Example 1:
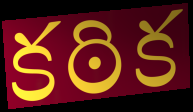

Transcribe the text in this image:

కఠిక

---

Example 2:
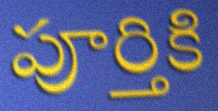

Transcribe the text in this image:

పూర్తికి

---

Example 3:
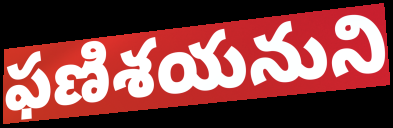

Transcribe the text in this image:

ఫణిశయనుని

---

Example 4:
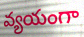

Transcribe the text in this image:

వ్యయంగా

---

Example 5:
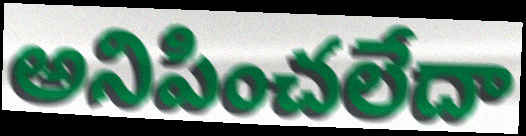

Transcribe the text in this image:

అనిపించలేదా